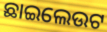
ଛାଇଲେଉଟ